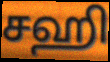
சஹி